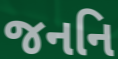
જનનિ